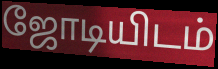
ஜோடியிடம்